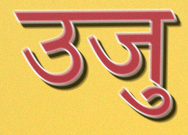
उजु